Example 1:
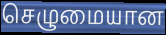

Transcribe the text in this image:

செழுமையான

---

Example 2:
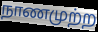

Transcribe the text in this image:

நாணமுற்ற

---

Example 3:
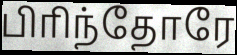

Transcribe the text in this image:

பிரிந்தோரே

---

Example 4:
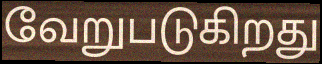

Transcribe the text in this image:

வேறுபடுகிறது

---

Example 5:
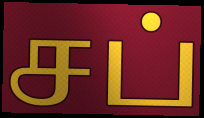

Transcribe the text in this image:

சப்